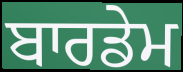
ਬਾਰਡੇਮ